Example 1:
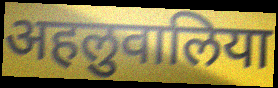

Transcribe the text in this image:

अहलुवालिया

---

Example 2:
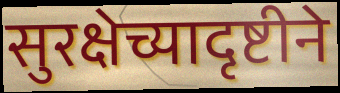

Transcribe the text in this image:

सुरक्षेच्यादृष्टीने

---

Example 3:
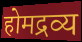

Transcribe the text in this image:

होमद्रव्य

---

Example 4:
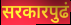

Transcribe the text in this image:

सरकारपुढं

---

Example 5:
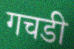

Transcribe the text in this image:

गचडी